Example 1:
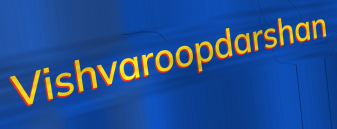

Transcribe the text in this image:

Vishvaroopdarshan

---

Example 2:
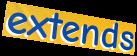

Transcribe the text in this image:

extends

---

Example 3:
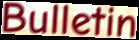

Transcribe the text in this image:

Bulletin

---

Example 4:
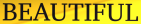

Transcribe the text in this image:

BEAUTIFUL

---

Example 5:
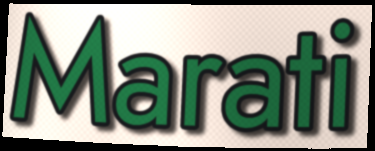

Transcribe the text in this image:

Marati